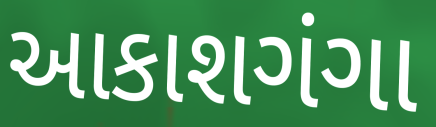
આકાશગંગા